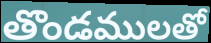
తొండములతో